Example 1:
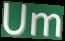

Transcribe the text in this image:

Um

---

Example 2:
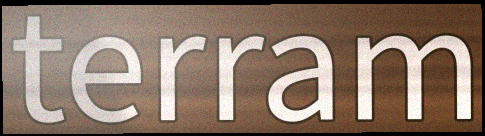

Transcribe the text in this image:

terram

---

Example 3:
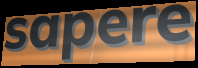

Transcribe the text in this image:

sapere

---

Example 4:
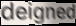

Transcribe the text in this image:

deigned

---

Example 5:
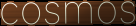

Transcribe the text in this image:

cosmos